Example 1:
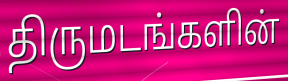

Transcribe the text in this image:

திருமடங்களின்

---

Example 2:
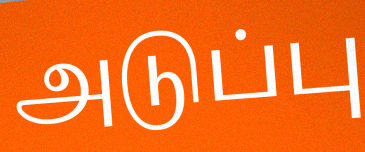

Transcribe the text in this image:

அடுப்பு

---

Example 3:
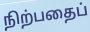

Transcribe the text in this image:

நிற்பதைப்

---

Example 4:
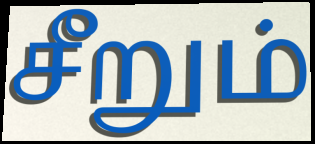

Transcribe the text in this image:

சீறும்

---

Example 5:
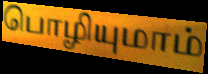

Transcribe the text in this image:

பொழியுமாம்